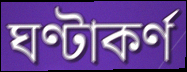
ঘণ্টাকর্ণ